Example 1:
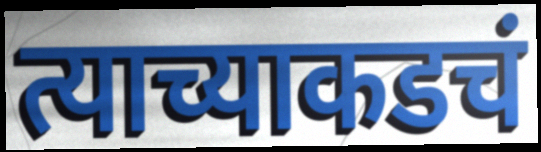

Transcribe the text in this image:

त्याच्याकडचं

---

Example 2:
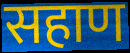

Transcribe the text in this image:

सहाण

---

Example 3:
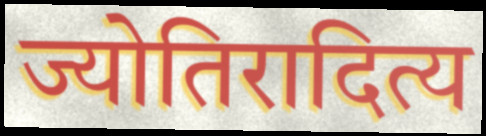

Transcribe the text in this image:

ज्योतिरादित्य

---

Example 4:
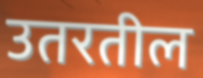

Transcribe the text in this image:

उतरतील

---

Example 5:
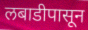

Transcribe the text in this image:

लबाडीपासून